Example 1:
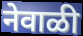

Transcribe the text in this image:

नेवाळी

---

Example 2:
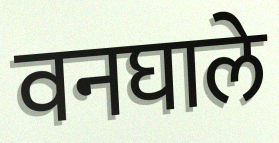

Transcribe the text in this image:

वनघाले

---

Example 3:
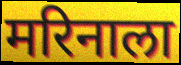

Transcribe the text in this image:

मरिनाला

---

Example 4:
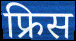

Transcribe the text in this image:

फ्रिस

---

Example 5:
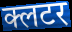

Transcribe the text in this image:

क्लटर